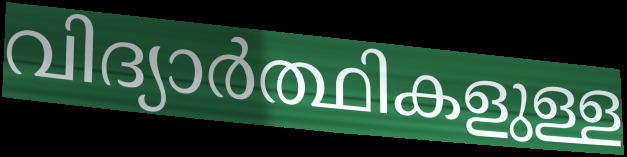
വിദ്യാർത്ഥികളുള്ള